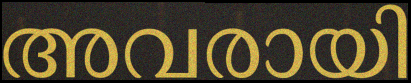
അവരായി